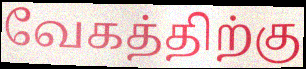
வேகத்திற்கு